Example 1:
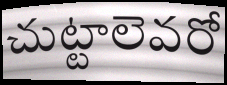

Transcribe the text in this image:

చుట్టాలెవరో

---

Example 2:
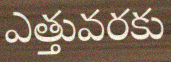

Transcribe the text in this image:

ఎత్తువరకు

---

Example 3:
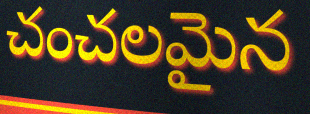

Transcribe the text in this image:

చంచలమైన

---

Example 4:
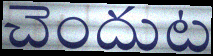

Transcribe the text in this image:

చెందుట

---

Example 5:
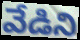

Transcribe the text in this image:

వేడిని